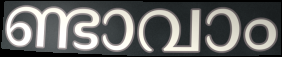
ണ്ടാവാം